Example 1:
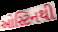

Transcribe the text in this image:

ઓસ્ટિનથી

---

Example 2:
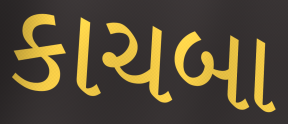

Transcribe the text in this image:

કાચબા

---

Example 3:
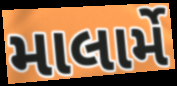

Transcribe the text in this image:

માલાર્મે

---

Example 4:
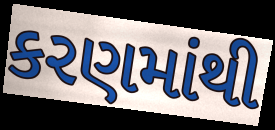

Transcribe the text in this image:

કરણમાંથી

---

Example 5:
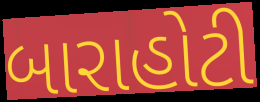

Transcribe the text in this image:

બારાહોટી